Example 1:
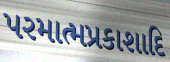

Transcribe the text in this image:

પરમાત્મપ્રકાશાદિ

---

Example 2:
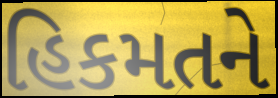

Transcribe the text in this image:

હિકમતને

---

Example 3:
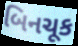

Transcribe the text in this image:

બિનચૂક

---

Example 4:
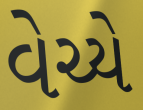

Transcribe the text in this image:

વેચ્યે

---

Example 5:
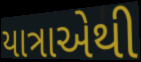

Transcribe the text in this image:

યાત્રાએથી